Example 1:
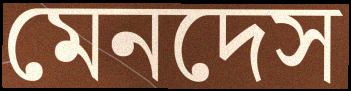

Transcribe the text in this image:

মেনদেস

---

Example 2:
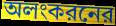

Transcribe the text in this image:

অলংকরনের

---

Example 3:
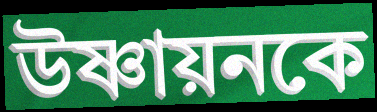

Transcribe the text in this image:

উষ্ণায়নকে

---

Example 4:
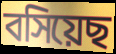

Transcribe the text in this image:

বসিয়েছ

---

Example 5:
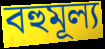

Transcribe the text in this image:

বহুমূল্য